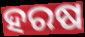
ହରଷ